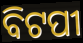
ବିଟପୀ